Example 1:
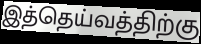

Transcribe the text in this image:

இத்தெய்வத்திற்கு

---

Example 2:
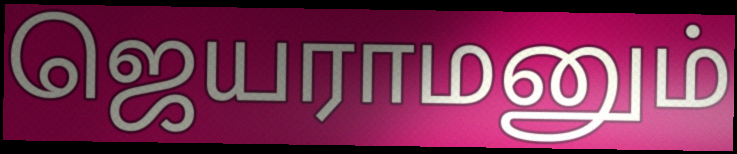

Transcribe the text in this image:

ஜெயராமனும்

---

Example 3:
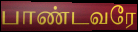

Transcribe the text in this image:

பாண்டவரே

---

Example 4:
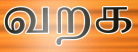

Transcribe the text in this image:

வறக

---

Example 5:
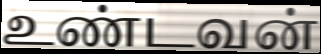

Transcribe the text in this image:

உண்டவன்